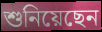
শুনিয়েছেন